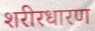
शरीरधारण